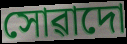
সোৱাদো